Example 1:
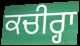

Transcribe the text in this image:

ਕਚੀਰ੍ਹਾ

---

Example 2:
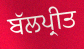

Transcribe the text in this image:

ਬੱਲਪ੍ਰੀਤ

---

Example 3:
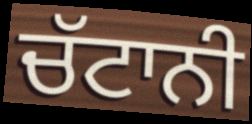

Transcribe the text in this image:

ਚੱਟਾਨੀ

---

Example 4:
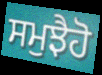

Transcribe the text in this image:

ਸਮੁਝੈਹੋ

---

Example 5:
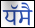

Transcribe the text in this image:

ਧੱਸੈ